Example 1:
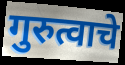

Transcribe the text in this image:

गुरुत्वाचे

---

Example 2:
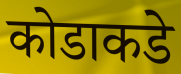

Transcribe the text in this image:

कोडाकडे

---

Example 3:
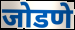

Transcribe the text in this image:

जोडणे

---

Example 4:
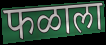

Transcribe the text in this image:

फळाला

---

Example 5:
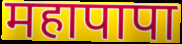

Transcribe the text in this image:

महापापा